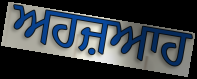
ਅਹਜ਼ਆਹ